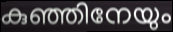
കുഞ്ഞിനേയും